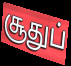
சூதுப்